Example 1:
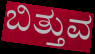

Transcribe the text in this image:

ಬಿತ್ತುವ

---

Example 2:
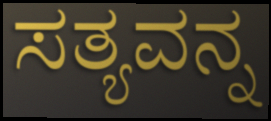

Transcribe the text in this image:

ಸತ್ಯವನ್ನ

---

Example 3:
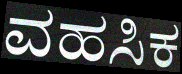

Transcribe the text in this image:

ವಹಸಿಕ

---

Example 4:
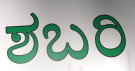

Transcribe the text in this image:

ಶಬರಿ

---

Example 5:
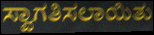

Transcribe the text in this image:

ಸ್ವಾಗತಿಸಲಾಯಿತು